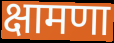
क्षामणा